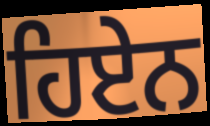
ਹਿਏਨ